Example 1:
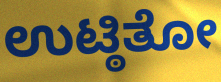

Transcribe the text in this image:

ಉಟ್ಠಿತೋ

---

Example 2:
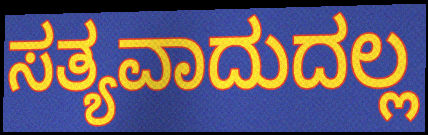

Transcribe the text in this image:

ಸತ್ಯವಾದುದಲ್ಲ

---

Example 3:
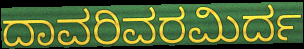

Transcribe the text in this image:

ದಾವರಿವರಮಿರ್ದ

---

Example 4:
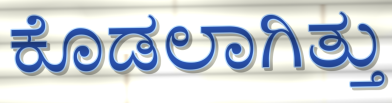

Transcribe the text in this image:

ಕೊಡಲಾಗಿತ್ತು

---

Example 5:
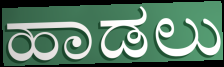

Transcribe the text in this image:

ಹಾಡಲು